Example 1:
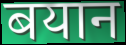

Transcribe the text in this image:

बयान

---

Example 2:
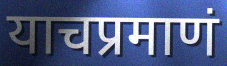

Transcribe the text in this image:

याचप्रमाणं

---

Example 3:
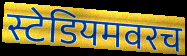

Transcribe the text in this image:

स्टेडियमवरच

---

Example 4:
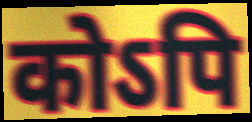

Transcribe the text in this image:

कोऽपि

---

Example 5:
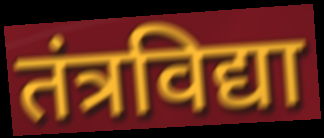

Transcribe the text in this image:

तंत्रविद्या